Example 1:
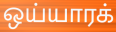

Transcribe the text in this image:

ஒய்யாரக்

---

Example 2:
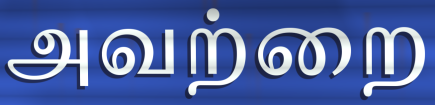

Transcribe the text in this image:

அவற்றை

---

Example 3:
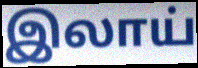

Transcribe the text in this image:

இலாய்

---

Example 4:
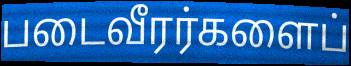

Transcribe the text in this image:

படைவீரர்களைப்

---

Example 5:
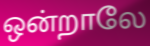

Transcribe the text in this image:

ஒன்றாலே